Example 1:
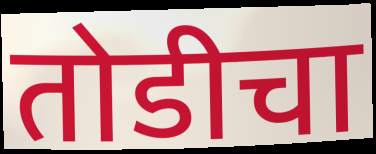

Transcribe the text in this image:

तोडीचा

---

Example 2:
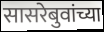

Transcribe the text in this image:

सासरेबुवांच्या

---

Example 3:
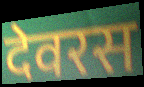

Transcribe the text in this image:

देवरस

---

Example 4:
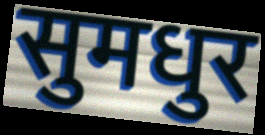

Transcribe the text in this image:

सुमधुर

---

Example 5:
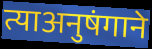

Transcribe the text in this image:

त्याअनुषंगाने